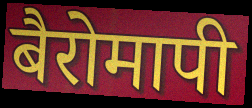
बैरोमापी